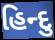
હિન્દુ